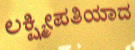
ಲಕ್ಷ್ಮೀಪತಿಯಾದ